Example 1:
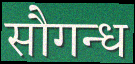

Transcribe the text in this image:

सौगन्ध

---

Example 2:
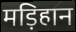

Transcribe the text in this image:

मड़िहान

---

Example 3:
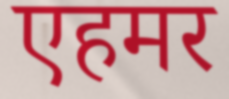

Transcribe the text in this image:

एहमर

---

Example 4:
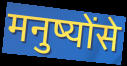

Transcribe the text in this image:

मनुष्योंसे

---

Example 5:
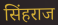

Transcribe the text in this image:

सिंहराज